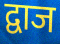
द्वाज